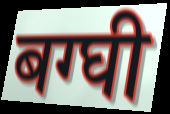
बग्घी